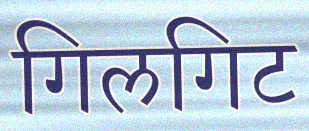
गिलगिट